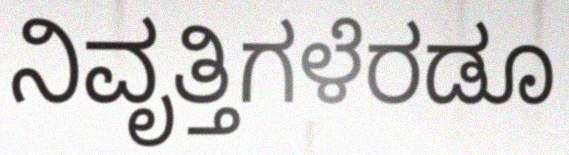
ನಿವೃತ್ತಿಗಳೆರಡೂ